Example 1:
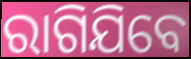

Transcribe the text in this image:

ରାଗିଯିବେ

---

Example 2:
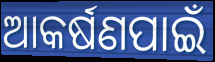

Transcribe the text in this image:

ଆକର୍ଷଣପାଇଁ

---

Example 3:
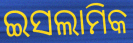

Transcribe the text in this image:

ଇସଲାମିକ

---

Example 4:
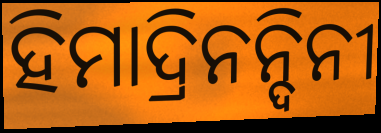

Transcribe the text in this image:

ହିମାଦ୍ରିନନ୍ଦିନୀ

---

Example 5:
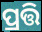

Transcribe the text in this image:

ପ୍ରତ୍ତି